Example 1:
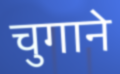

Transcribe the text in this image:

चुगाने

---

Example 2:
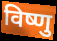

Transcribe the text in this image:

विष्णु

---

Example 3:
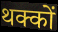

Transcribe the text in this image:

थक्कों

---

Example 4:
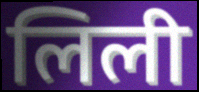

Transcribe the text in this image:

लिली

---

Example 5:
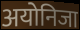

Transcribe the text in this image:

अयोनिजा